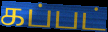
கப்பட்